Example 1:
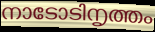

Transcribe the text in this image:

നാടോടിനൃത്തം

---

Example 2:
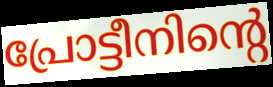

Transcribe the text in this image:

പ്രോട്ടീനിന്റെ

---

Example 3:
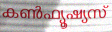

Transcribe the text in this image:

കൺഫ്യൂഷ്യസ്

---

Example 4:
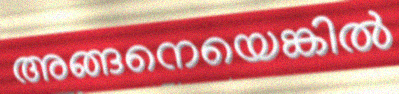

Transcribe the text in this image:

അങ്ങനെയെങ്കിൽ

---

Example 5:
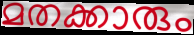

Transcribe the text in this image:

മതക്കാരും